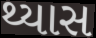
થ્યાસ